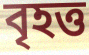
বৃহত্ত